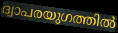
ദ്വാപരയുഗത്തിൽ